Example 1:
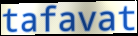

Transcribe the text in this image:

tafavat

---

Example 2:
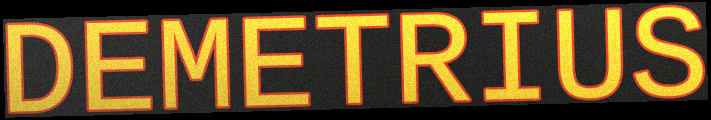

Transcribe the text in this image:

DEMETRIUS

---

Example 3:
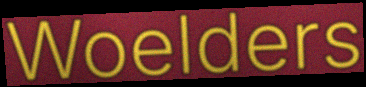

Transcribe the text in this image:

Woelders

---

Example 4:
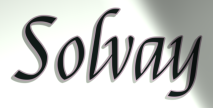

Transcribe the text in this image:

Solvay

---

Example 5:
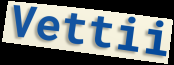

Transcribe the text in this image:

Vettii